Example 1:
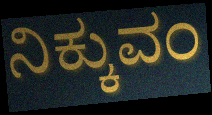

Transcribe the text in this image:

ನಿಕ್ಕುವಂ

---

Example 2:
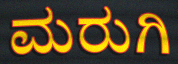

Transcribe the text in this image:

ಮರುಗಿ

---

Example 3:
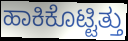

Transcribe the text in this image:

ಹಾಕಿಕೊಟ್ಟಿತ್ತು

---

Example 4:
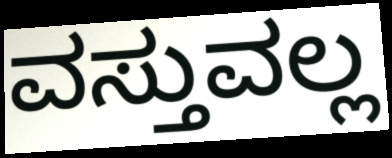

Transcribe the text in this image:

ವಸ್ತುವಲ್ಲ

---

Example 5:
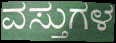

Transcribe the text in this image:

ವಸ್ತುಗಳ